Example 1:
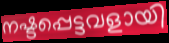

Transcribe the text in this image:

നഷ്ടപ്പെട്ടവളായി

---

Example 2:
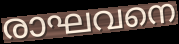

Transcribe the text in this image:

രാഘവനെ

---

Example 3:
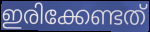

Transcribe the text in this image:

ഇരിക്കേണ്ടത്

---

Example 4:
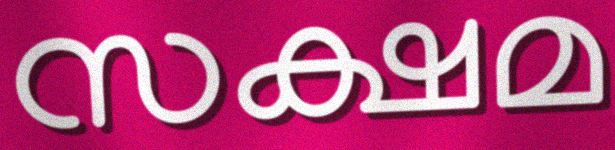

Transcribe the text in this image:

സക്ഷമ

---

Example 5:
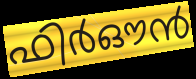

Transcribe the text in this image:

ഫിർഔൻ